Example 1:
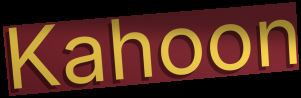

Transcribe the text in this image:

Kahoon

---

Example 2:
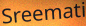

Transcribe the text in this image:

Sreemati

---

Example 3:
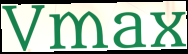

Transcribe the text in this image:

Vmax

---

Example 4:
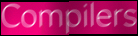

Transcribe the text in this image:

Compilers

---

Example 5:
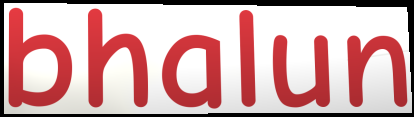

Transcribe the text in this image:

bhalun